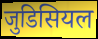
जुडिसियल